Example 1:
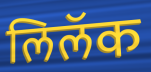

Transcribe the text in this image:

लिलॅक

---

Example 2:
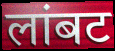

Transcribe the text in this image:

लांबट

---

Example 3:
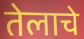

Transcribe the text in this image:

तेलाचे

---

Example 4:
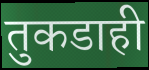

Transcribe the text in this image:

तुकडाही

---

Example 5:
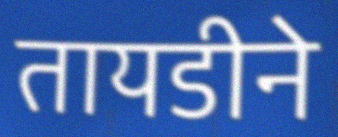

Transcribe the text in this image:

तायडीने